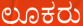
ಲೂಕರು